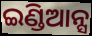
ଇଣ୍ଡିଆନ୍ସ